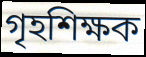
গৃহশিক্ষক